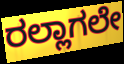
ರಲ್ಲಾಗಲೇ